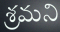
శ్రమని